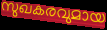
സുഖകരവുമായ